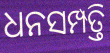
ଧନସମ୍ପତ୍ତି